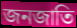
জনজাতি